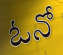
ఓనో